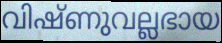
വിഷ്ണുവല്ലഭായ